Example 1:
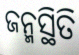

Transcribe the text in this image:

ଜନ୍ମସ୍ଥିତି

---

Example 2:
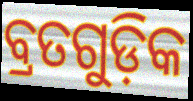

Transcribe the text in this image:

ବ୍ରତଗୁଡ଼ିକ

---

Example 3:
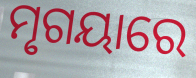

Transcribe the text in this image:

ମୃଗୟାରେ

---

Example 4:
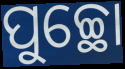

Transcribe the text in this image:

ପୁଚ୍ଛୋ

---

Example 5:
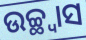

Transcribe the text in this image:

ଉଚ୍ଛ୍ୱାସ